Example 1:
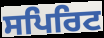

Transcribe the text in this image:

ਸਪਿਰਿਟ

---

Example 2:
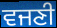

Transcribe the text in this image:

ਵਜਣੀ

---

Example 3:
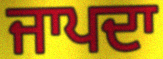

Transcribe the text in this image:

ਜਾਪਦਾ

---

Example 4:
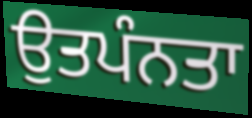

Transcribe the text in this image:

ਉਤਪੰਨਤਾ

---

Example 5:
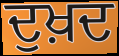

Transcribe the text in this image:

ਦੁਖ਼ਦ